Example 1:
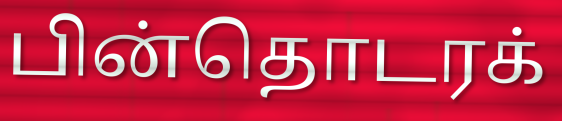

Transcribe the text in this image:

பின்தொடரக்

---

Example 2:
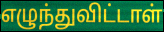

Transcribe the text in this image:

எழுந்துவிட்டாள்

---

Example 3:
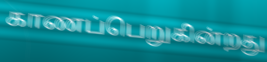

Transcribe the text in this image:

காணப்பெறுகின்றது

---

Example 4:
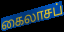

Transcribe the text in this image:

கைலாசப்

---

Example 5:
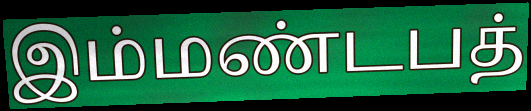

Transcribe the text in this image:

இம்மண்டபத்